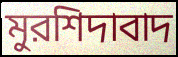
মুরশিদাবাদ